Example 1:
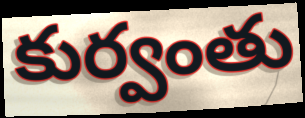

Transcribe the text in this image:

కుర్వంతు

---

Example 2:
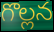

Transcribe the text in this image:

గొల్లన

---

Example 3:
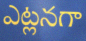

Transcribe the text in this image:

ఎట్లనగా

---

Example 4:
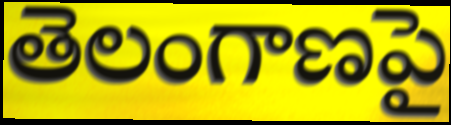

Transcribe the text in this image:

తెలంగాణపై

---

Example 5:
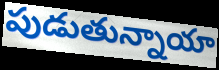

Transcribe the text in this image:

పుడుతున్నాయా